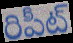
రిపీట్